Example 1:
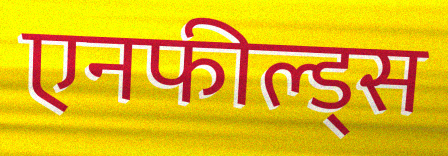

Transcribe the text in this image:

एनफील्ड्स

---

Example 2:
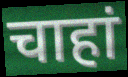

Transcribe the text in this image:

चाहां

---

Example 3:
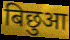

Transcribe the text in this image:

बिछुआ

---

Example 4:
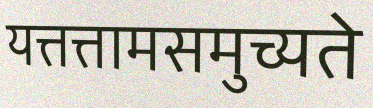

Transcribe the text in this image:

यत्तत्तामसमुच्यते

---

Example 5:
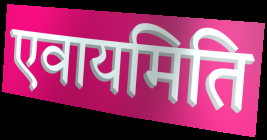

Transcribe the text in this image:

एवायमिति